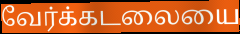
வேர்க்கடலையை